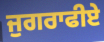
ਜੁਗਰਾਫੀਏ